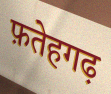
फ़तेहगढ़